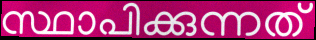
സ്ഥാപിക്കുന്നത്